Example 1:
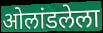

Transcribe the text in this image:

ओलांडलेला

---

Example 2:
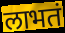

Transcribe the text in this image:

लाभतं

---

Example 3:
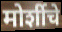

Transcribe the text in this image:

मोर्शीचे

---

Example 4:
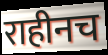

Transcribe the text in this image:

राहीनच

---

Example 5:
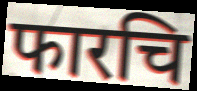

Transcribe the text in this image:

फारचि